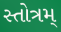
સ્તોત્રમ્